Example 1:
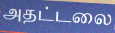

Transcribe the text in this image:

அதட்டலை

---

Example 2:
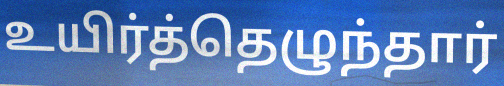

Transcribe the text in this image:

உயிர்த்தெழுந்தார்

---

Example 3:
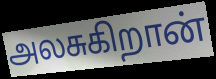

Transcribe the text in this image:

அலசுகிறான்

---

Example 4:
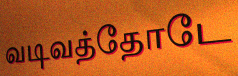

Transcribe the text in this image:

வடிவத்தோடே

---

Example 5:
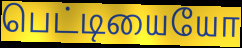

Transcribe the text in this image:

பெட்டியையோ